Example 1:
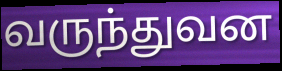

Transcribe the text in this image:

வருந்துவன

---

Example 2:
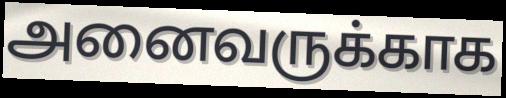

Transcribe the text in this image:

அனைவருக்காக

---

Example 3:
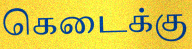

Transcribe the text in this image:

கெடைக்கு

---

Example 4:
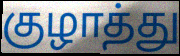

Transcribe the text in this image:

குழாத்து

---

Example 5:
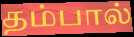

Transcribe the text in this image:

தம்பால்